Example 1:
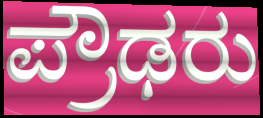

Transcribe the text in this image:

ಪ್ರೌಢರು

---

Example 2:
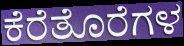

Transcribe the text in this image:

ಕೆರೆತೊರೆಗಳ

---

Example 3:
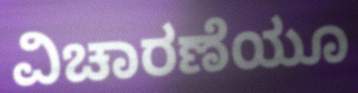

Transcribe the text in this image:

ವಿಚಾರಣೆಯೂ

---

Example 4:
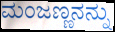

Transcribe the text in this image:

ಮಂಜಣ್ಣನನ್ನು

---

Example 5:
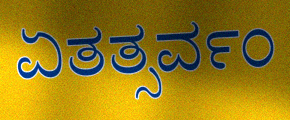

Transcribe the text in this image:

ಏತತ್ಸರ್ವಂ